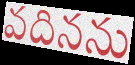
వదినను